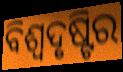
ବିଶ୍ୱଦୃଷ୍ଟିର